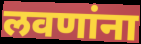
लवणांना